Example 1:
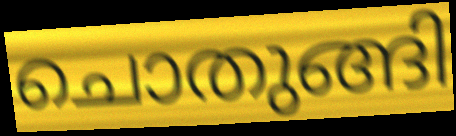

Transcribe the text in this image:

ചൊതുങ്ങി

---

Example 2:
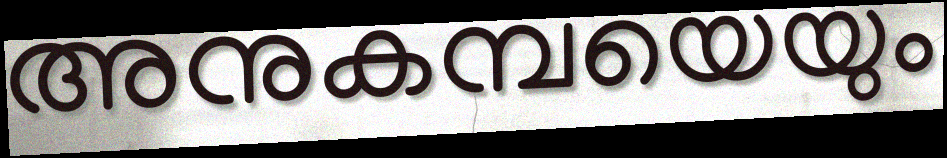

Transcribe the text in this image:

അനുകമ്പയെയും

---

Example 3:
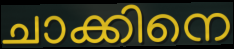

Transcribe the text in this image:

ചാക്കിനെ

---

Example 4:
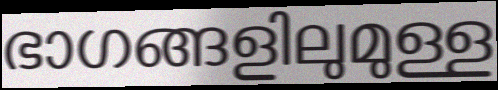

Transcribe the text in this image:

ഭാഗങ്ങളിലുമുള്ള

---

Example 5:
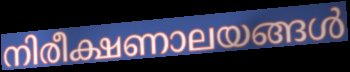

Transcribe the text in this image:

നിരീക്ഷണാലയങ്ങൾ